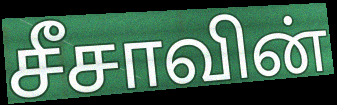
சீசாவின்